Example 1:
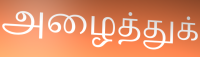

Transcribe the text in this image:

அழைத்துக்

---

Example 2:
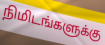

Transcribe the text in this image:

நிமிடங்களுக்கு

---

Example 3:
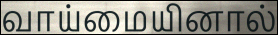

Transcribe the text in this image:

வாய்மையினால்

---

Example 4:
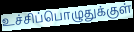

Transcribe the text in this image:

உச்சிப்பொழுதுக்குள்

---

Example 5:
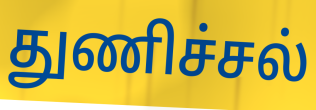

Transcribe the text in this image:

துணிச்சல்